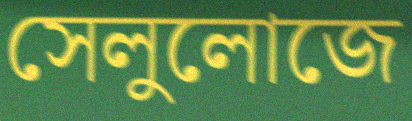
সেলুলোজে